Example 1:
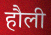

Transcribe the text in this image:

हौली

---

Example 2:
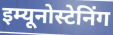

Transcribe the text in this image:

इम्यूनोस्टेनिंग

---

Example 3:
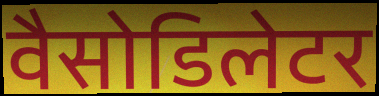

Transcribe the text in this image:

वैसोडिलेटर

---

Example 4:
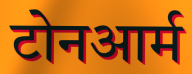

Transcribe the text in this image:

टोनआर्म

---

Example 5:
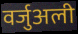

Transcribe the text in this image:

वर्जुअली